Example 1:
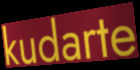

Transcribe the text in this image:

kudarte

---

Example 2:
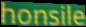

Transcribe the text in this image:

honsile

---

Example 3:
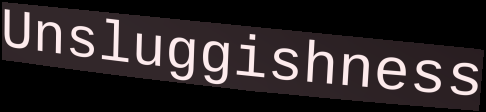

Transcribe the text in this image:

Unsluggishness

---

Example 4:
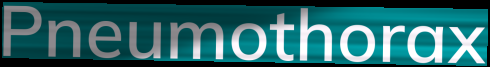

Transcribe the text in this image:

Pneumothorax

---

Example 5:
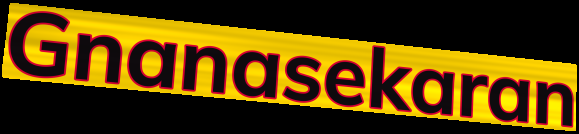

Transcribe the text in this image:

Gnanasekaran